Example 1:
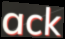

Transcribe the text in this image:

ack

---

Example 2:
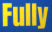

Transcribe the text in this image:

Fully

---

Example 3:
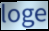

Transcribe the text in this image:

loge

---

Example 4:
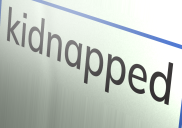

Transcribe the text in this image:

kidnapped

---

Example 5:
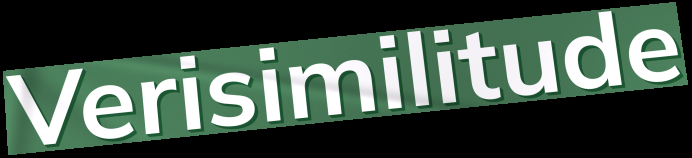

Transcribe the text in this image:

Verisimilitude